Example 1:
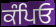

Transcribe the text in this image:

ਕੰਪਿਓ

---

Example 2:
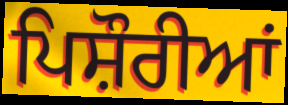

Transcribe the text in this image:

ਪਿਸ਼ੌਰੀਆਂ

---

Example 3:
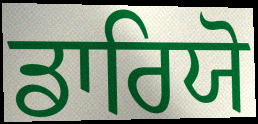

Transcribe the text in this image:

ਡਾਰਿਯੋ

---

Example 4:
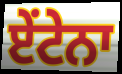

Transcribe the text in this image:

ਏਂਟੇਨਾ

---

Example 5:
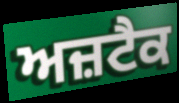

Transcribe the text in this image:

ਅਜ਼ਟੈਕ